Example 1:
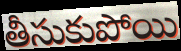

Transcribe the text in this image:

తీసుకుపోయి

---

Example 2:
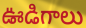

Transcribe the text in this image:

ఊడిగాలు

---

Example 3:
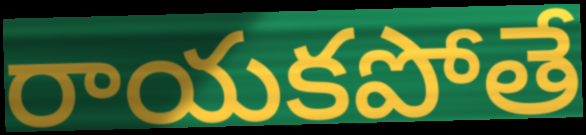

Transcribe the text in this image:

రాయకపోతే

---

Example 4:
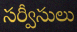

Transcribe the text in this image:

సర్వీసులు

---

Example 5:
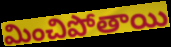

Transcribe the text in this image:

మించిపోతాయి